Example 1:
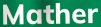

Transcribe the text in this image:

Mather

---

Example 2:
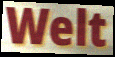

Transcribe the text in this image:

Welt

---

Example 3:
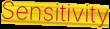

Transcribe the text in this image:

Sensitivity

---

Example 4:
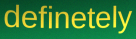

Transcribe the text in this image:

definetely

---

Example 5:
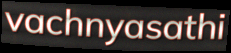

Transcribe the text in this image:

vachnyasathi